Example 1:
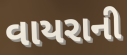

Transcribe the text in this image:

વાયરાની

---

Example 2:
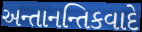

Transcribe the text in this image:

અન્તાનન્તિકવાદે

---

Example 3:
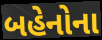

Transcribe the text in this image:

બહેનોના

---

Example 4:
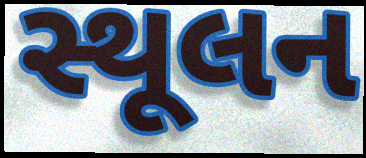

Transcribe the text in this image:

સ્થૂલન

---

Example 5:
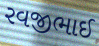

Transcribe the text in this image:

રવજીભાઈ